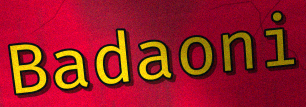
Badaoni